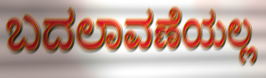
ಬದಲಾವಣೆಯಲ್ಲ